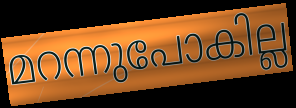
മറന്നുപോകില്ല